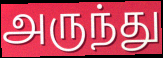
அருந்து